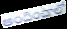
అందించాలో